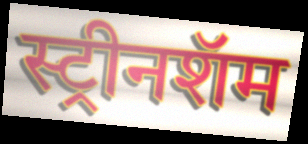
स्ट्रीनशॅम